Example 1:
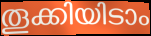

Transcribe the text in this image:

തൂക്കിയിടാം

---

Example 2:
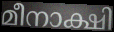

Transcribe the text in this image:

മീനാക്ഷി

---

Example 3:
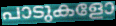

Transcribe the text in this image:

പാടുകളോ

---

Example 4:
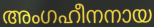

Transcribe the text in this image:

അംഗഹീനനായ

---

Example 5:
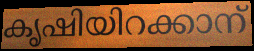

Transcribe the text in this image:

കൃഷിയിറക്കാന്